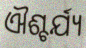
ଐଶ୍ଚର୍ଯ୍ୟ